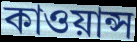
কাওয়ান্স